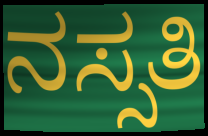
ನಸ್ಸತಿ